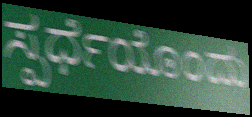
ಸ್ಪರ್ಧೆಯೊಂದು